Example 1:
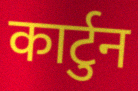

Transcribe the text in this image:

कार्टुन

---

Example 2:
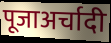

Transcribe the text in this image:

पूजाअर्चादी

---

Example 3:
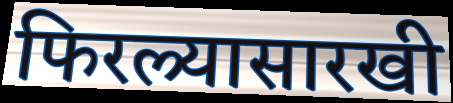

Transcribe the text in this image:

फिरल्यासारखी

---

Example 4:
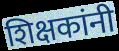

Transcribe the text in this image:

शिक्षकांनी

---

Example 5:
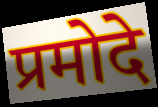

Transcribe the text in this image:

प्रमोदे